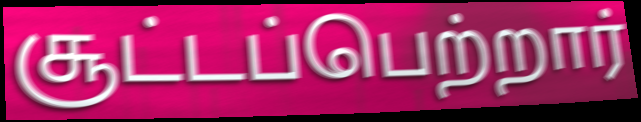
சூட்டப்பெற்றார்